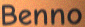
Benno